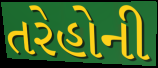
તરેહોની